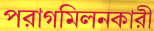
পরাগমিলনকারী